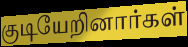
குடியேறினார்கள்